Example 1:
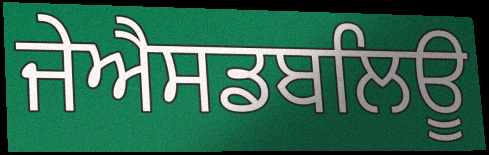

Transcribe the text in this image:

ਜੇਐਸਡਬਲਿਊ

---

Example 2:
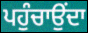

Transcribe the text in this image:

ਪਹੁੰਚਾਉਂਦਾ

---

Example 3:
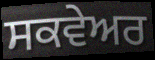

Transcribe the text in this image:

ਸਕਵੇਅਰ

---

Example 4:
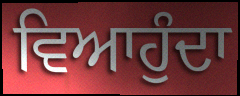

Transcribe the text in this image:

ਵਿਆਹੁੰਦਾ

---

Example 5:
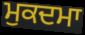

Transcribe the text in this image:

ਮੁਕਦਮਾ